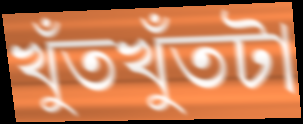
খুঁতখুঁতটা